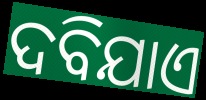
ଦବିଯାଏ